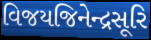
વિજયજિનેન્દ્રસૂરિ